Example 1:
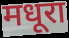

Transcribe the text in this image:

मधूरा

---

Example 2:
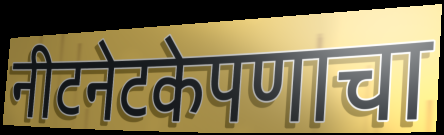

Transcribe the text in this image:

नीटनेटकेपणाचा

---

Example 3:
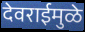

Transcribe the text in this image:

देवराईमुळे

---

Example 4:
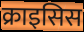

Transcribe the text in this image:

क्राइसिस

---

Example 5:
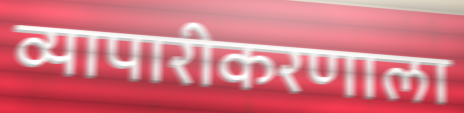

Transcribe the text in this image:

व्यापारीकरणाला